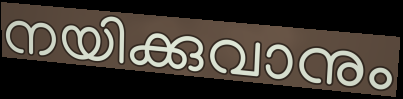
നയിക്കുവാനും